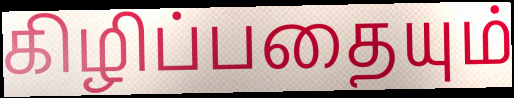
கிழிப்பதையும்